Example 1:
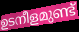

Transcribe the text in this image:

ഉടനീളമുണ്ട്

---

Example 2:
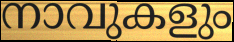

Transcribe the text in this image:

നാവുകളും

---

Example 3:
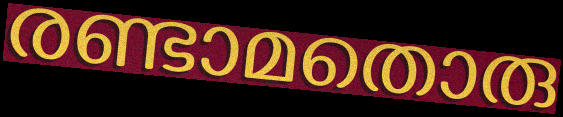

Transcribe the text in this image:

രണ്ടാമതൊരു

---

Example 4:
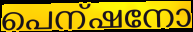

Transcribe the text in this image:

പെന്ഷനോ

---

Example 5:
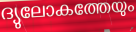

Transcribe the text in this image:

ദ്യുലോകത്തേയും